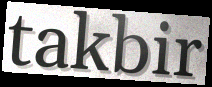
takbir